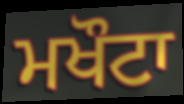
ਮਖੌਟਾ